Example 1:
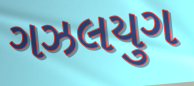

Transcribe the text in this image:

ગઝલયુગ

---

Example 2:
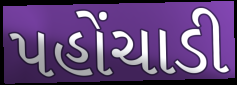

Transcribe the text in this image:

પહોંચાડી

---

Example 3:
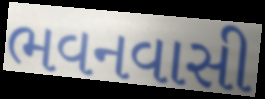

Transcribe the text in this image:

ભવનવાસી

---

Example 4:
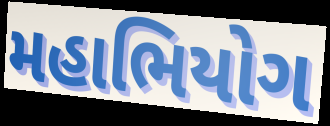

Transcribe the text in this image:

મહાભિયોગ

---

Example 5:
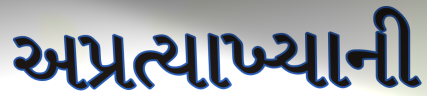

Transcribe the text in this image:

અપ્રત્યાખ્યાની